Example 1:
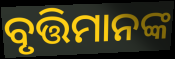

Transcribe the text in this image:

ବୃତ୍ତିମାନଙ୍କ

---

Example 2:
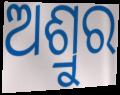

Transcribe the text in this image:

ଅଶ୍ରୁର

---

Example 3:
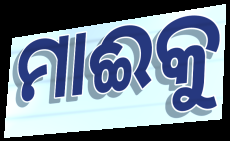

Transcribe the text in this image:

ମାଈକୁ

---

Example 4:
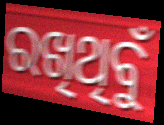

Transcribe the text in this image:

ରଖିଥିବୁଁ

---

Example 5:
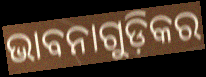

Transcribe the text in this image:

ଭାବନାଗୁଡ଼ିକର